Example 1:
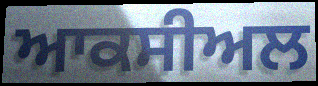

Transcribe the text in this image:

ਆਕਸੀਅਲ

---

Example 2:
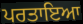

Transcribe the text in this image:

ਪਰਤਾਇਆ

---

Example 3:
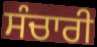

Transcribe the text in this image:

ਸੰਚਾਰੀ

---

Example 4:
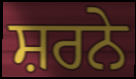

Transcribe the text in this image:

ਸ਼ਰਨੇ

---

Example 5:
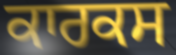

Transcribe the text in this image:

ਕਾਰਕਸ